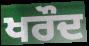
ਖਰੌਦ